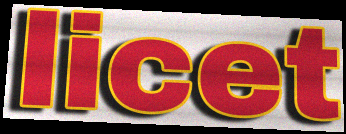
licet